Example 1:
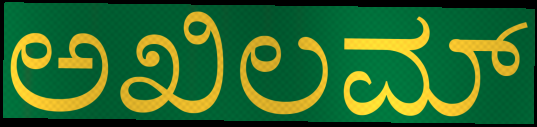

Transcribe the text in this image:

ಅಖಿಲಮ್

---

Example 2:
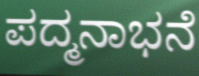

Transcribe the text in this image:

ಪದ್ಮನಾಭನೆ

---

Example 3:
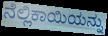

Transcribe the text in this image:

ನೆಲ್ಲಿಕಾಯಿಯನ್ನು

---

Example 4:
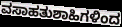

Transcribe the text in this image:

ವಸಾಹತುಶಾಹಿಗಳಿಂದ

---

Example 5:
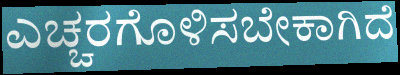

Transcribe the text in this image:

ಎಚ್ಚರಗೊಳಿಸಬೇಕಾಗಿದೆ